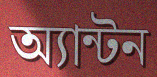
অ্যান্টন